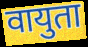
वायुता